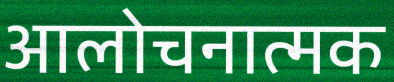
आलोचनात्मक